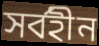
সর্বহীন